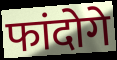
फांदोगे